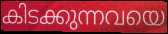
കിടക്കുന്നവയെ